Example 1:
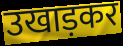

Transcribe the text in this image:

उखाड़कर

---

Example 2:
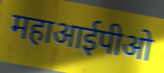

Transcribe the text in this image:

महाआईपीओ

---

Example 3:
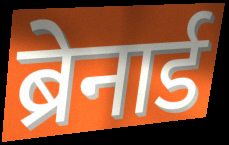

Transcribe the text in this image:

ब्रेनार्ड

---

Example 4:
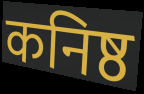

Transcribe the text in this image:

कनिष्ठ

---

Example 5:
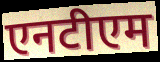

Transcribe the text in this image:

एनटीएम